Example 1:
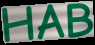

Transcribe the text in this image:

HAB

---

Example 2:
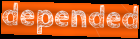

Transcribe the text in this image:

depended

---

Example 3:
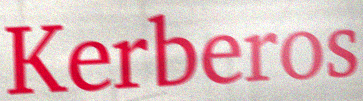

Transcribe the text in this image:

Kerberos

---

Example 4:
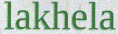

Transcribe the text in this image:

lakhela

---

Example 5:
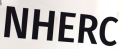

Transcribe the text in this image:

NHERC